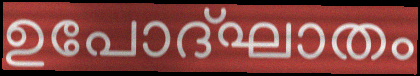
ഉപോദ്ഘാതം